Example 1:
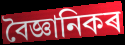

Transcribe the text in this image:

বৈজ্ঞানিকৰ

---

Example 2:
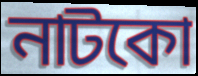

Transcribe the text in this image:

নাটকো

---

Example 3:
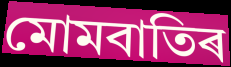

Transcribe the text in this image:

মোমবাতিৰ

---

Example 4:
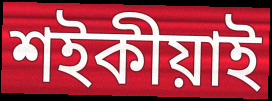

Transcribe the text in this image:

শইকীয়াই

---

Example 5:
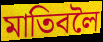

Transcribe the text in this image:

মাতিবলৈ